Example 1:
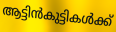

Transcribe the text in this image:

ആട്ടിൻകുട്ടികൾക്ക്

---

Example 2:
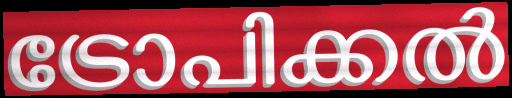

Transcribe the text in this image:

ട്രോപിക്കൽ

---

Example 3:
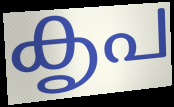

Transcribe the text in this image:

കൃപ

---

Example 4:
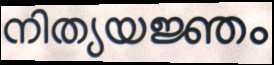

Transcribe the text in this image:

നിത്യയജ്ഞം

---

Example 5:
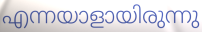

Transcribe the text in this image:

എന്നയാളായിരുന്നു